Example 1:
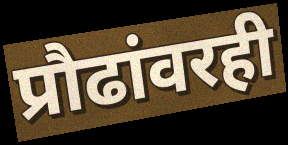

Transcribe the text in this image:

प्रौढांवरही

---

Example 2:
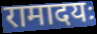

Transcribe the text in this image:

रामादयः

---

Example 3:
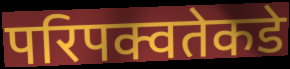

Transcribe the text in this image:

परिपक्वतेकडे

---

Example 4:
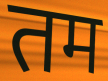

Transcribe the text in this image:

तम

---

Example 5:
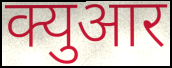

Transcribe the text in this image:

क्युआर